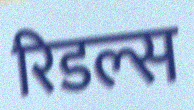
रिडल्स